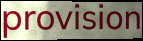
provision